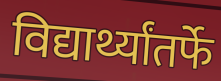
विद्यार्थ्यांतर्फे